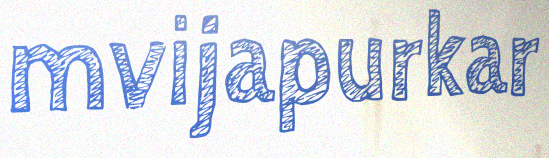
mvijapurkar